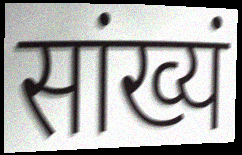
सांख्यं